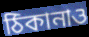
ঠিকানাও